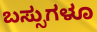
ಬಸ್ಸುಗಳೂ